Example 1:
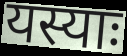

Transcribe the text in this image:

यस्याः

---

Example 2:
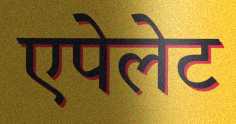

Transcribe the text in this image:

एपेलेट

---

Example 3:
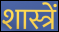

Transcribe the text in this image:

शास्त्रें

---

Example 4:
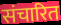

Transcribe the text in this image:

संचारित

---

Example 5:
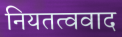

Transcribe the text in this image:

नियतत्ववाद